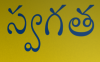
స్వగత